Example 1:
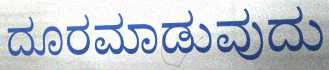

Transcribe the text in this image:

ದೂರಮಾಡುವುದು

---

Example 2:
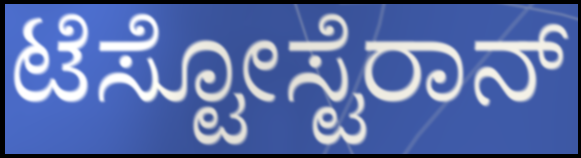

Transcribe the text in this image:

ಟೆಸ್ಟೋಸ್ಟೆರಾನ್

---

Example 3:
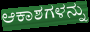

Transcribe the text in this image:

ಆಕಾಶಗಳನ್ನು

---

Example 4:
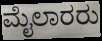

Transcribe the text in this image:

ಮೈಲಾರರು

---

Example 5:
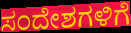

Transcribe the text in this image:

ಸಂದೇಶಗಳಿಗೆ